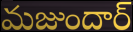
మజుందార్